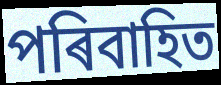
পৰিবাহিত